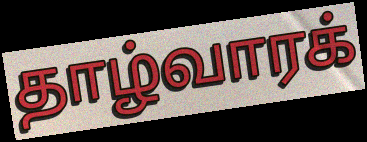
தாழ்வாரக்